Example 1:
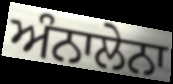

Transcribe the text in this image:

ਅੰਨਾਲੇਨਾ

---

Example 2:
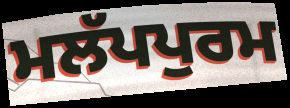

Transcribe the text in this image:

ਮਲੱਪਪੁਰਮ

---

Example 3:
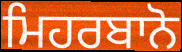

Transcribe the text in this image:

ਮਿਹਰਬਾਨੋ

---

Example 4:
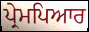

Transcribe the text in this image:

ਪ੍ਰੇਮਪਿਆਰ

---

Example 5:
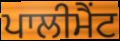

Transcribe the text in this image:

ਪਾਲੀਮੈਂਟ